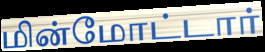
மின்மோட்டார்